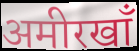
अमीरखाँ